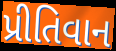
પ્રીતિવાન